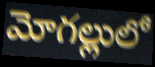
మోగల్లులో